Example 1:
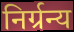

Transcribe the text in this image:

निर्ग्रन्य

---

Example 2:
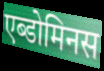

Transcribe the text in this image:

एब्डोमिनस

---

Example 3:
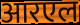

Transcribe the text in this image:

आरएल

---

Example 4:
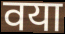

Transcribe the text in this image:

वया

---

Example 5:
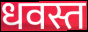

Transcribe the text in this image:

धवस्त